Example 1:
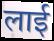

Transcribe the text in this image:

लाई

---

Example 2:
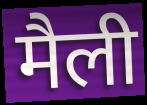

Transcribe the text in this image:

मैली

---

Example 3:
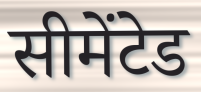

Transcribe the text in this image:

सीमेंटेड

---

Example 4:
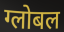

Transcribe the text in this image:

ग्लोबल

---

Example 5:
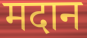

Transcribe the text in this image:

मदान